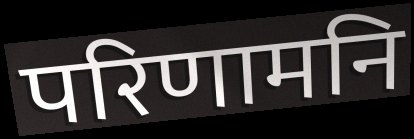
परिणामनि